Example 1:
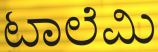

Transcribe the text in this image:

ಟಾಲೆಮಿ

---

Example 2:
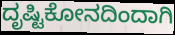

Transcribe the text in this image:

ದೃಷ್ಟಿಕೋನದಿಂದಾಗಿ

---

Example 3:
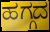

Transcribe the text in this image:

ಹಗ್ಗದ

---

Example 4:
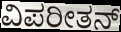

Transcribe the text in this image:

ವಿಪರೀತನ್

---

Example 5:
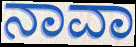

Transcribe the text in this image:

ನಾವಾ